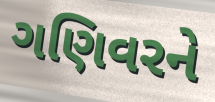
ગણિવરને